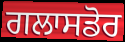
ਗਲਾਸਡੋਰ